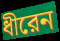
ধীরেন